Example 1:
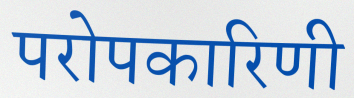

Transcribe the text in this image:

परोपकारिणी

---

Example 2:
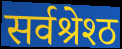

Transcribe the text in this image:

सर्वश्रेश्ठ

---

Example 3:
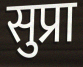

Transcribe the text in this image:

सुप्रा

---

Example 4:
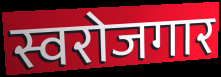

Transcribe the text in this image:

स्वरोजगार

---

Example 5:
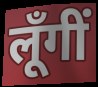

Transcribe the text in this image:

लूँगीं